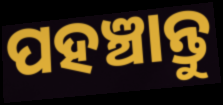
ପହଞ୍ଚାନ୍ତୁ